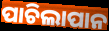
ପାଚିଲାପାନ